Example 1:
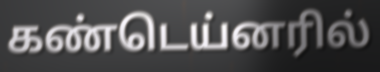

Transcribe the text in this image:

கண்டெய்னரில்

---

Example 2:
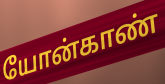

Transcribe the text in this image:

யோன்காண்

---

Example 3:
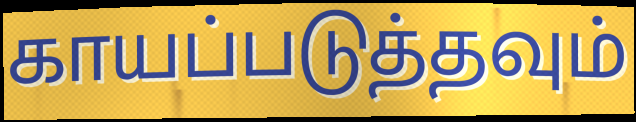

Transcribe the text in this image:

காயப்படுத்தவும்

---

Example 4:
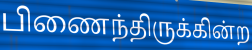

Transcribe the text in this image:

பிணைந்திருக்கின்ற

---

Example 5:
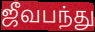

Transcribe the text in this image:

ஜீவபந்து